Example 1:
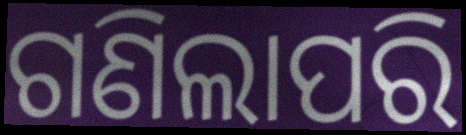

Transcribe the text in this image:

ଗଣିଲାପରି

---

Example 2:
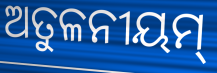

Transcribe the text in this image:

ଅତୁଳନୀୟମ୍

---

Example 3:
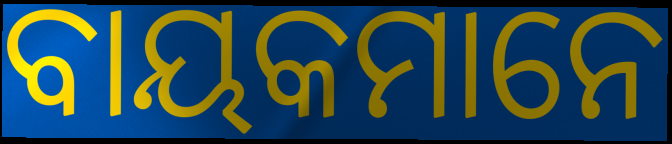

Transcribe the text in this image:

ବାୟକମାନେ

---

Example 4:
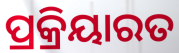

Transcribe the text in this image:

ପ୍ରକ୍ରିୟାରତ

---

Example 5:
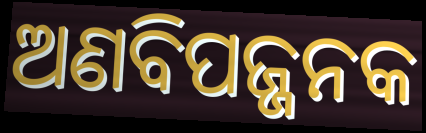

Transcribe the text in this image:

ଅଣବିପଜ୍ଜନକ